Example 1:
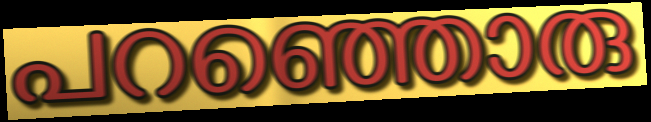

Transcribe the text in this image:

പറഞ്ഞൊരു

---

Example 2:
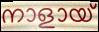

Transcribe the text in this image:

നാളായ്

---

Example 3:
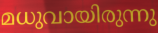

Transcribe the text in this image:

മധുവായിരുന്നു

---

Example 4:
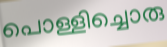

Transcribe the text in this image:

പൊള്ളിച്ചൊരു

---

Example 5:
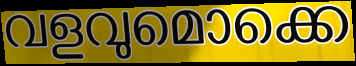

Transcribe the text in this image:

വളവുമൊക്കെ